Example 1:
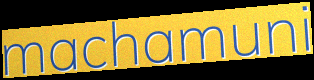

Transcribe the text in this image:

machamuni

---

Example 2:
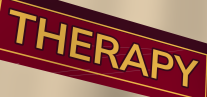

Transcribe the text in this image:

THERAPY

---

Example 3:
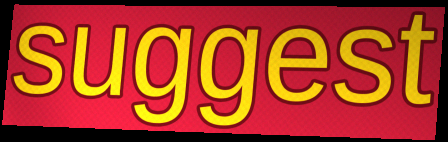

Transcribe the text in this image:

suggest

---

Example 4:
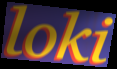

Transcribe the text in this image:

loki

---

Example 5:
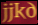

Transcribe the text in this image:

jjkd